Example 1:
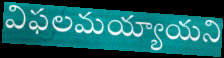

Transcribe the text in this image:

విఫలమయ్యాయని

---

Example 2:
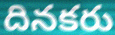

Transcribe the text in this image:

దినకరు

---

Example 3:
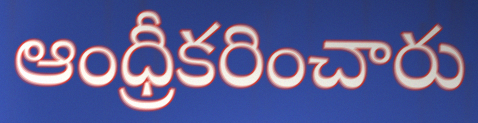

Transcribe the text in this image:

ఆంధ్రీకరించారు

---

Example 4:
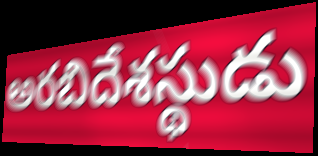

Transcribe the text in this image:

అరబిదేశస్థుడు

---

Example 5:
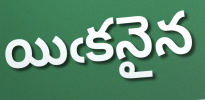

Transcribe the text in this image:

యిఁకనైన